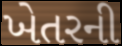
ખેતરની